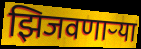
झिजवणाऱ्या